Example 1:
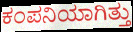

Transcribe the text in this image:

ಕಂಪನಿಯಾಗಿತ್ತು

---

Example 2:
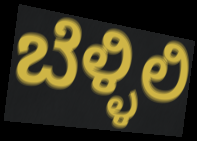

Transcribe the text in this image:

ಬೆಳ್ಳಿಲಿ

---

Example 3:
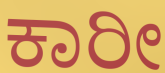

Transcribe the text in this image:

ಕಾರೀ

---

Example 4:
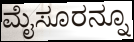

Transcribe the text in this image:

ಮೈಸೂರನ್ನೂ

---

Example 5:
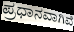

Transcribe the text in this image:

ಪ್ರಧಾನವಾಗಿವೆ